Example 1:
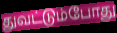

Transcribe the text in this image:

துவட்டும்போது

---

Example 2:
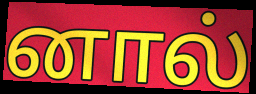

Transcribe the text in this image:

னால்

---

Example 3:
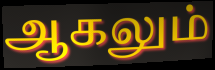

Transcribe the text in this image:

ஆகலும்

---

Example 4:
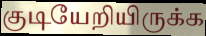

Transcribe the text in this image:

குடியேறியிருக்க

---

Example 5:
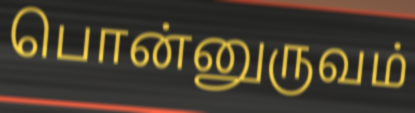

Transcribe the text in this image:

பொன்னுருவம்